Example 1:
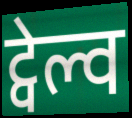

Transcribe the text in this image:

ट्वेल्व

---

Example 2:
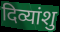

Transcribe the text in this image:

दिव्‍यांशु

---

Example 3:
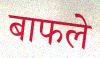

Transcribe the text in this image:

बाफले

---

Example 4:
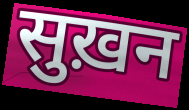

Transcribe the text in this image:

सुख़न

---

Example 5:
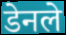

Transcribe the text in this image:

डेनले